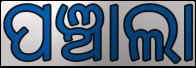
ପଞ୍ଚାଲା